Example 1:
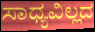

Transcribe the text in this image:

ಸಾಧ್ಯವಿಲ್ಲದ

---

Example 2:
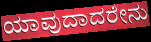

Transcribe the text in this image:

ಯಾವುದಾದರೇನು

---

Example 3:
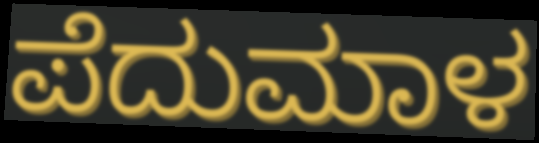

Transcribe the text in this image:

ಪೆದುಮಾಳ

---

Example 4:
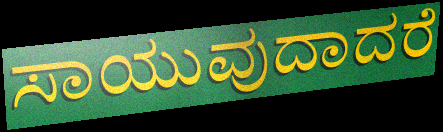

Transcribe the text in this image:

ಸಾಯುವುದಾದರೆ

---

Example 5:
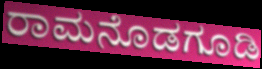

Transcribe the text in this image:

ರಾಮನೊಡಗೂಡಿ